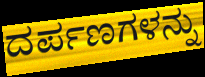
ದರ್ಪಣಗಳನ್ನು